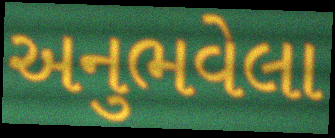
અનુભવેલા